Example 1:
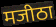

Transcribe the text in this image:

मजीठा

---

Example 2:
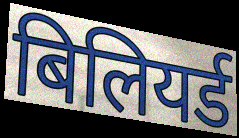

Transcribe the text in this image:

बिलियर्ड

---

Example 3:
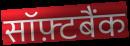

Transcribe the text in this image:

सॉफ़्टबैंक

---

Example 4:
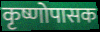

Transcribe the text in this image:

कृष्णोपासक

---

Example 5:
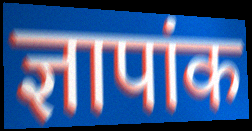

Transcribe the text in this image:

ज्ञापांक